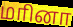
மரினா